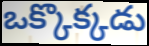
ఒక్కొక్కడు